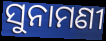
ସୁନାମଣୀ